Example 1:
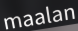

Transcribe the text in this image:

maalan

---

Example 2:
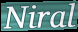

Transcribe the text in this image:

Niral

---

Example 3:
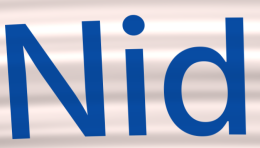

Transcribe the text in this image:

Nid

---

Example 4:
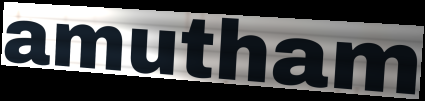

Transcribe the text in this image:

amutham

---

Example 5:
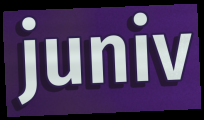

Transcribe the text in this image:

juniv